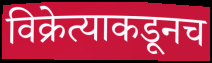
विक्रेत्याकडूनच